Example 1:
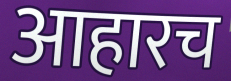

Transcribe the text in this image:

आहारच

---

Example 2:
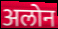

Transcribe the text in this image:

अलोन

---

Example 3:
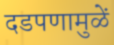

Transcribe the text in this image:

दडपणामुळें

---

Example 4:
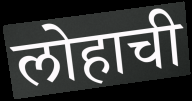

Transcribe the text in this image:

लोहाची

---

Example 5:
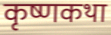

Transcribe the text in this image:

कृष्णकथा